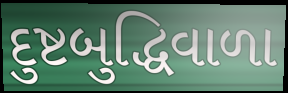
દુષ્ટબુદ્ધિવાળા